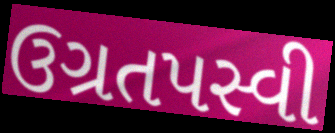
ઉગ્રતપસ્વી